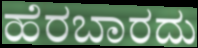
ಹೆರಬಾರದು